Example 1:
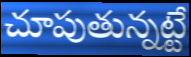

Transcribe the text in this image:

చూపుతున్నట్టే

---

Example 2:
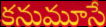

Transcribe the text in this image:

కనుమూసే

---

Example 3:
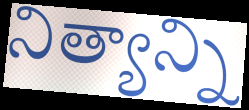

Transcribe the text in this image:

నిత్యాన్ని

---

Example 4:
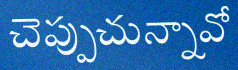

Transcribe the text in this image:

చెప్పుచున్నావో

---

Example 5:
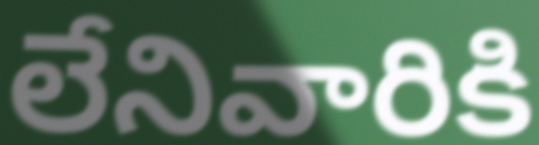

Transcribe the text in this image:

లేనివారికి